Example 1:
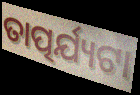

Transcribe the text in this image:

ତାତ୍ପର୍ଯ୍ୟଟା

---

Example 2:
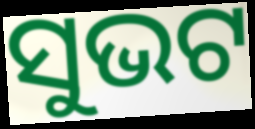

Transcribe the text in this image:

ସୁଭଟ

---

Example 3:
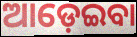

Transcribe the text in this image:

ଆଡ଼େଇବା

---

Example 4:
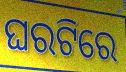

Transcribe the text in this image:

ଘରଟିରେ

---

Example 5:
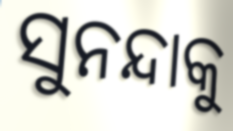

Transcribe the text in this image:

ସୁନନ୍ଦାକୁ